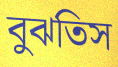
বুঝতিস